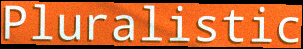
Pluralistic